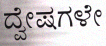
ದ್ವೇಷಗಳೇ